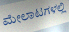
ಮೇಲಾಟಗಳಲ್ಲಿ